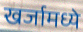
खर्जामध्ये